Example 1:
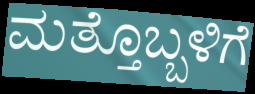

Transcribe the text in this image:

ಮತ್ತೊಬ್ಬಳಿಗೆ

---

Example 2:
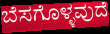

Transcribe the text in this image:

ಬೆಸಗೊಳ್ಳವುದೆ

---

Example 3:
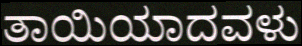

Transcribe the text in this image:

ತಾಯಿಯಾದವಳು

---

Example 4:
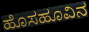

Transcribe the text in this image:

ಹೊಸಹೂವಿನ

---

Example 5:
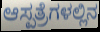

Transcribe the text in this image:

ಆಸ್ಪತ್ರೆಗಳಲ್ಲಿನ